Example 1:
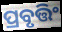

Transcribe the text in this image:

ପ୍ରବୃତ୍ତିଂ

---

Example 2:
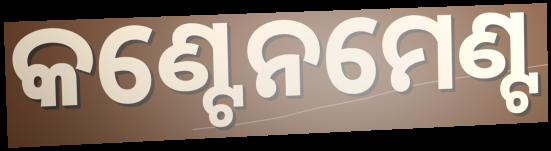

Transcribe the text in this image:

କଣ୍ଟେନମେଣ୍ଟ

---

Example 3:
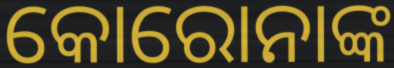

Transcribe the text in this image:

କୋରୋନାଙ୍କ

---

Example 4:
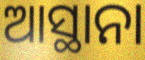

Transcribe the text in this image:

ଆସ୍ଥାନା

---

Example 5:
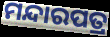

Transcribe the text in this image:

ମନ୍ଦାରପତ୍ର